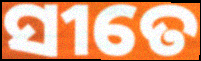
ସୀତେ